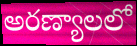
అరణ్యాలలో